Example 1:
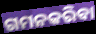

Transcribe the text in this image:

ଗମନକରିବା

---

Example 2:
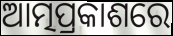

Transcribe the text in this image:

ଆତ୍ମପ୍ରକାଶରେ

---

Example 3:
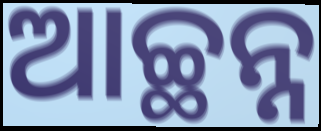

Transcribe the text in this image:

ଆଚ୍ଛନ୍ନ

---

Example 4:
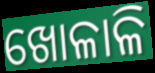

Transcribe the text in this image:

ଖୋଳାଳି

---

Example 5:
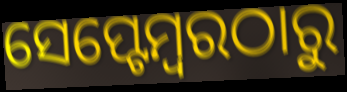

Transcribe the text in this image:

ସେପ୍ଟେମ୍ବରଠାରୁ